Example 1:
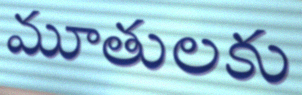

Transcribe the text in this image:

మూతులకు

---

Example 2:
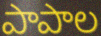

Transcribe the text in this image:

పాపాల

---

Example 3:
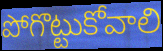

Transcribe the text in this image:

పోగొట్టుకోవాలి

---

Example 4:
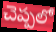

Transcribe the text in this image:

చెప్పలో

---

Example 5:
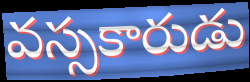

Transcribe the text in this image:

వస్సకారుడు